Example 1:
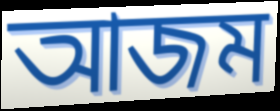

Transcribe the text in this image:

আজম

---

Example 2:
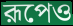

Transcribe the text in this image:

রূপেও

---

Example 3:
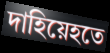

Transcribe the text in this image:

দাহিয়েহতে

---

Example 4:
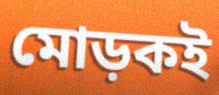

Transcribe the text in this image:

মোড়কই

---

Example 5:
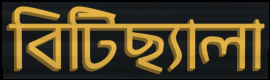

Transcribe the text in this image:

বিটিছ্যালা